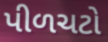
પીળચટો